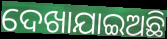
ଦେଖାଯାଇଅଛି